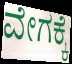
ವೇಗಕ್ಕೆ